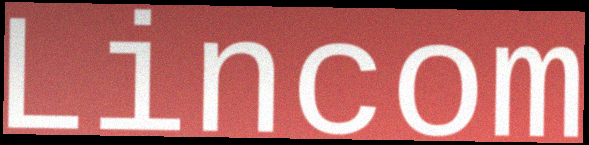
Lincom